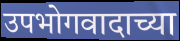
उपभोगवादाच्या